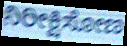
ನಿರೀಕ್ಷಿಸೋಣ